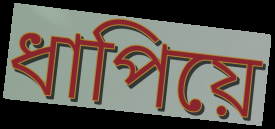
ধাপিয়ে